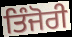
ਤਿੰਜੋਰੀ